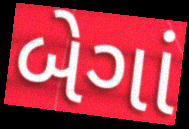
બેગાં